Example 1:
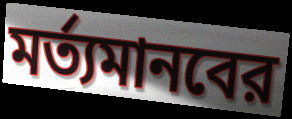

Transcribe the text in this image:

মর্ত্যমানবের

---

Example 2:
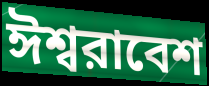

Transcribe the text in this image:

ঈশ্বরাবেশ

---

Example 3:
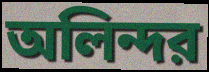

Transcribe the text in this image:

অলিন্দর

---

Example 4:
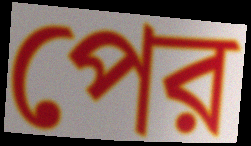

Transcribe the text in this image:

পের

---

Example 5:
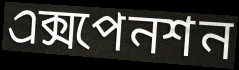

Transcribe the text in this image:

এক্সপেনশন